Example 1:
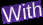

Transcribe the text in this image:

With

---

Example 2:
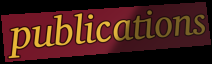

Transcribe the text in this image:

publications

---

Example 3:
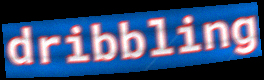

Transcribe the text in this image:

dribbling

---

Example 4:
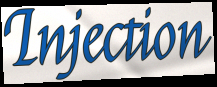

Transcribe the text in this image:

Injection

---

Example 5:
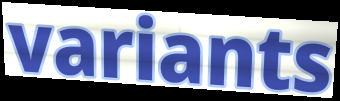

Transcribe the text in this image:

variants